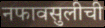
नफावसुलीची